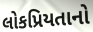
લોકપ્રિયતાનો